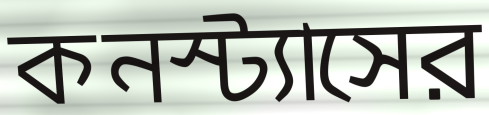
কনস্ট্যাসের